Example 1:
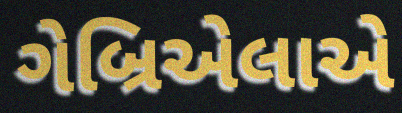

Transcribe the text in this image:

ગેબ્રિએલાએ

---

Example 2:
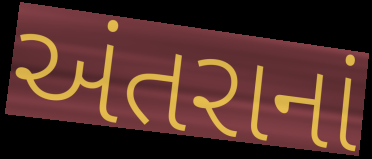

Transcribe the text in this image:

અંતરાનાં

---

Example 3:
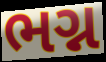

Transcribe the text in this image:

ભગ્ન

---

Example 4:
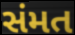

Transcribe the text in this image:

સંમત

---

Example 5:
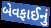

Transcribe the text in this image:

બેવફાઈનું